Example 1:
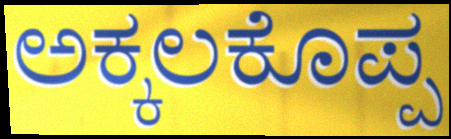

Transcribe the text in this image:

ಅಕ್ಕಲಕೊಪ್ಪ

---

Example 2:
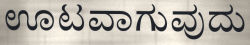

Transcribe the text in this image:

ಊಟವಾಗುವುದು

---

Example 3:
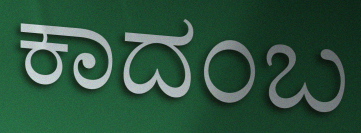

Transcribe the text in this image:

ಕಾದಂಬ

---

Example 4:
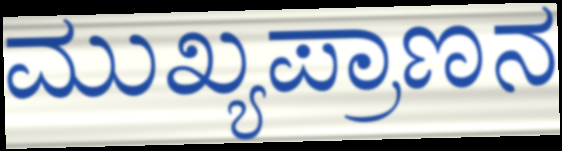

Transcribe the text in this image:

ಮುಖ್ಯಪ್ರಾಣನ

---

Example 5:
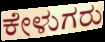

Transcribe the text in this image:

ಕೇಳುಗರು